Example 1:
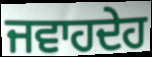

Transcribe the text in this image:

ਜਵਾਹਦੇਹ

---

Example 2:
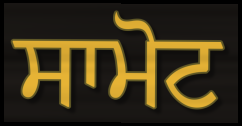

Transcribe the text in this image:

ਸਾਮੋਟ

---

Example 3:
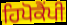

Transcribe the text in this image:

ਹਿਪੋਕੈਂਪੀ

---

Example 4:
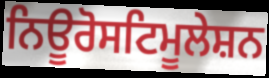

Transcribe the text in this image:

ਨਿਊਰੋਸਟਿਮੂਲੇਸ਼ਨ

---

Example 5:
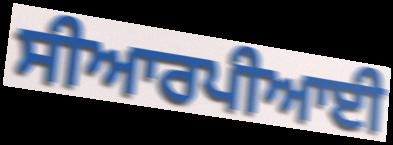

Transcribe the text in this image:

ਸੀਆਰਪੀਆਈ